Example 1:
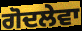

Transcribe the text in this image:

ਗੋਦਲੇਵਾ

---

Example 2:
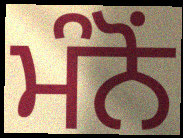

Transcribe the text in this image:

ਮੰਨੋਂ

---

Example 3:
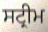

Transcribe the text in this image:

ਸਟ੍ਰੀਮ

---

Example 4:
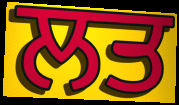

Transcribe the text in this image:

ਲਤ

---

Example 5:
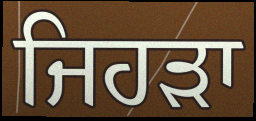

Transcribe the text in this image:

ਜਿਹੜਾ